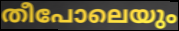
തീപോലെയും